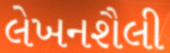
લેખનશૈલી